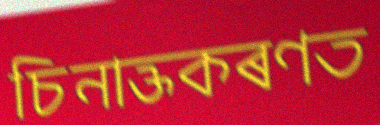
চিনাক্তকৰণত